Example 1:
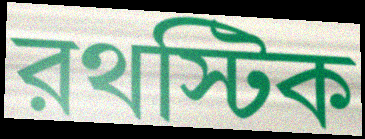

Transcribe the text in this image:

রথস্টিক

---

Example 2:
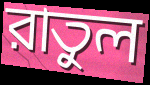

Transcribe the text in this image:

রাতুল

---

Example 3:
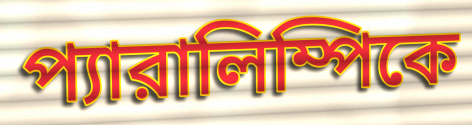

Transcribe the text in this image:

প্যারালিম্পিকে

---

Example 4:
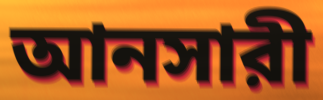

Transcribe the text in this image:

আনসারী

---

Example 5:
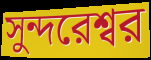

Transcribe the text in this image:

সুন্দরেশ্বর